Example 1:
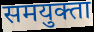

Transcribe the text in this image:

समयुक्ता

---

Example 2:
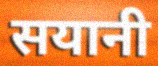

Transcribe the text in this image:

सयानी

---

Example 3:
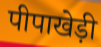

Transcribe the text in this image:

पीपाखेड़ी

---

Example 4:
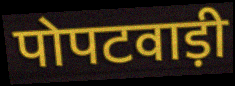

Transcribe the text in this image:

पोपटवाड़ी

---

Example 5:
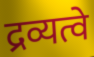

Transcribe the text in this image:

द्रव्यत्वे